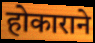
होकाराने